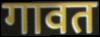
गावत